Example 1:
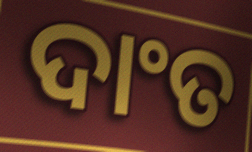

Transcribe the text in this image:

ଦାଂତ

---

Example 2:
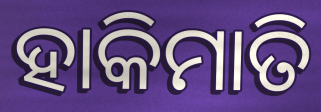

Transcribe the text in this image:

ହାକିମାତି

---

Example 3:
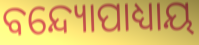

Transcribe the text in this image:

ବନ୍ଦ୍ୟୋପାଧ୍ୟାୟ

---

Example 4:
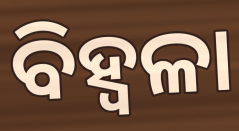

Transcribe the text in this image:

ବିହ୍ଵଳା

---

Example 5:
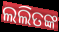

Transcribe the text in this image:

ଲଲିତଙ୍କ